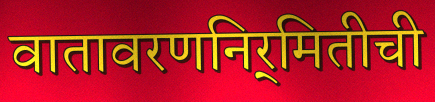
वातावरणनिर्मितीची